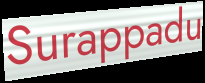
Surappadu